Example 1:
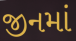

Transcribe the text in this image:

જીનમાં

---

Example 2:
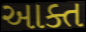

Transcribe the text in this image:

આક્ત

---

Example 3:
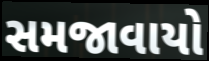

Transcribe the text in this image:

સમજાવાયો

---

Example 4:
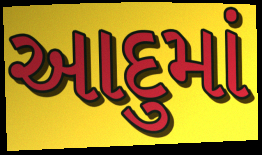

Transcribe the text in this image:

આદુમાં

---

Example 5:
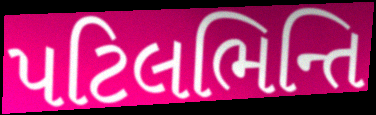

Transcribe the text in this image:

પટિલભિન્તિ